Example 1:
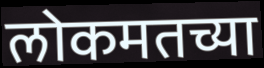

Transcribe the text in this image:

लोकमतच्या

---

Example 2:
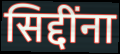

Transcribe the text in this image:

सिद्दींना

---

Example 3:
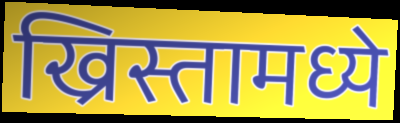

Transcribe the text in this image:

ख्रिस्तामध्ये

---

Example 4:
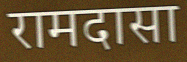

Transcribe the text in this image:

रामदासा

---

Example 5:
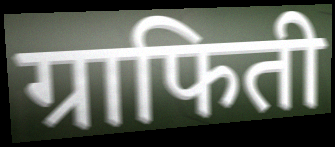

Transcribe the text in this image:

ग्राफिती